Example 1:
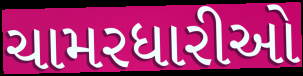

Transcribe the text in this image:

ચામરધારીઓ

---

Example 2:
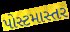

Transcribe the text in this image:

પોસ્ટમાસ્તર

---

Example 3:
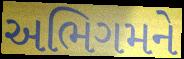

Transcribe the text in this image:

અભિગમને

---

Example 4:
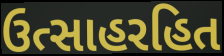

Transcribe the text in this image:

ઉત્સાહરહિત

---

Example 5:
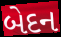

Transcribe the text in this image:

બેદન